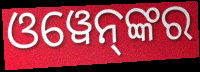
ଓୱେନ୍‌ଙ୍କର